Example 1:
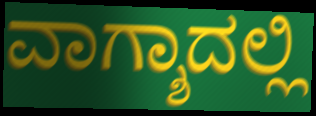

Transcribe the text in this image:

ವಾಗ್ಶಾದಲ್ಲಿ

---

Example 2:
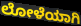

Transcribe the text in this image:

ಲೋಳೆಯಾಗಿ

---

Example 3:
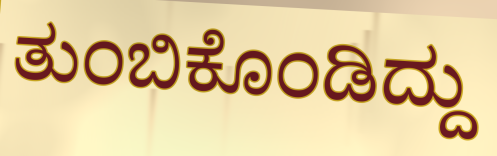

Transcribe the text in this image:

ತುಂಬಿಕೊಂಡಿದ್ದು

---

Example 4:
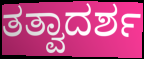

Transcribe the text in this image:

ತತ್ವಾದರ್ಶ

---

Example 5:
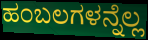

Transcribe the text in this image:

ಹಂಬಲಗಳನ್ನೆಲ್ಲ